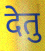
देतु